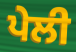
ਪੇਲੀ